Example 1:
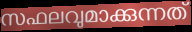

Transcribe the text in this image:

സഫലവുമാക്കുന്നത്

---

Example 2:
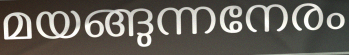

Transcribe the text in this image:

മയങ്ങുന്നനേരം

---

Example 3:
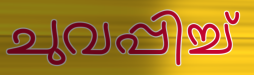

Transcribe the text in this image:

ചുവപ്പിച്ച്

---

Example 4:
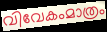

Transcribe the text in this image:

വിവേകംമാത്രം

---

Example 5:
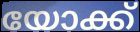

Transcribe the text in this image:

യോക്ക്